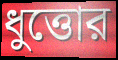
ধুত্তোর